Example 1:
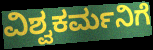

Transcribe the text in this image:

ವಿಶ್ವಕರ್ಮನಿಗೆ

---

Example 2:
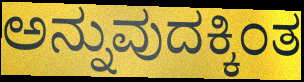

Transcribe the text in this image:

ಅನ್ನುವುದಕ್ಕಿಂತ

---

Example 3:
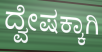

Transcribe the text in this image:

ದ್ವೇಷಕ್ಕಾಗಿ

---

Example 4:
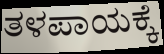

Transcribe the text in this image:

ತಳಪಾಯಕ್ಕೆ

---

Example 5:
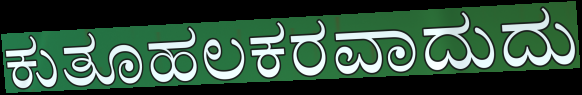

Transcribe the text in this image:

ಕುತೂಹಲಕರವಾದುದು